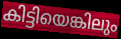
കിട്ടിയെങ്കിലും